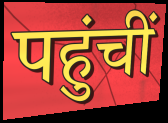
पहुंचीं